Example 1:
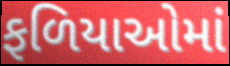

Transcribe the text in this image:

ફળિયાઓમાં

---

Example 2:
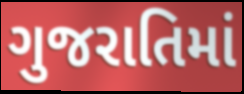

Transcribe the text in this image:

ગુજરાતિમાં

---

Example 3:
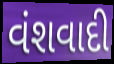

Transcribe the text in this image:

વંશવાદી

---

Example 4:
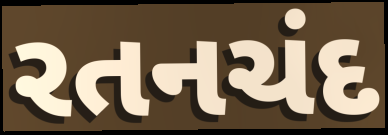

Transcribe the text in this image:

રતનચંદ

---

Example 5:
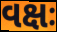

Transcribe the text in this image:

વક્ષઃ